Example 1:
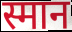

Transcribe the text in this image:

स्मान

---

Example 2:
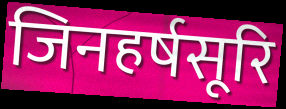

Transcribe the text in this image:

जिनहर्षसूरि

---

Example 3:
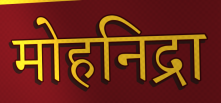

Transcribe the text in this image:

मोहनिद्रा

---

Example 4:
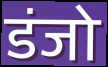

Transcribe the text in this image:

डंजो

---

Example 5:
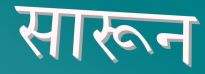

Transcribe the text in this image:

सारून